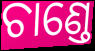
ଚାଣ୍ଡେ